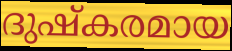
ദുഷ്കരമായ